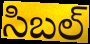
సిబల్